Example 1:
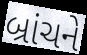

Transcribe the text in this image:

બ્રાંચને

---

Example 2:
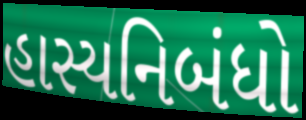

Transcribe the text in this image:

હાસ્યનિબંધો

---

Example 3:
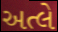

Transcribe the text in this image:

અત્લે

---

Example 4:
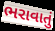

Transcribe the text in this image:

ભરાવાતું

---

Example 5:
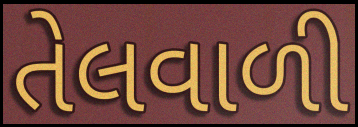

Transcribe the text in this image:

તેલવાળી